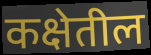
कक्षेतील